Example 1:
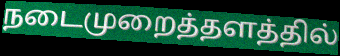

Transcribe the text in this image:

நடைமுறைத்தளத்தில்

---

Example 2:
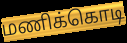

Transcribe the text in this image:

மணிக்கொடி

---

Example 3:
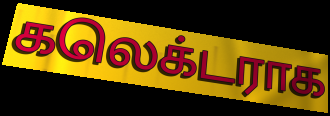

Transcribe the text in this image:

கலெக்டராக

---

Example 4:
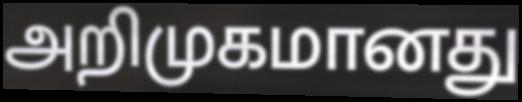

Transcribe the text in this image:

அறிமுகமானது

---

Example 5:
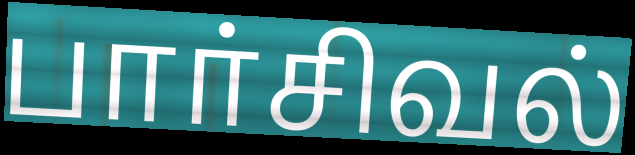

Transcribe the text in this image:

பார்சிவல்